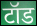
टॉड